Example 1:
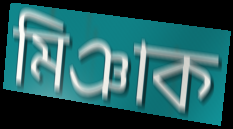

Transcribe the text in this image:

মিঞাক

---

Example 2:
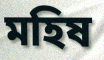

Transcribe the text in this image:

মহিষ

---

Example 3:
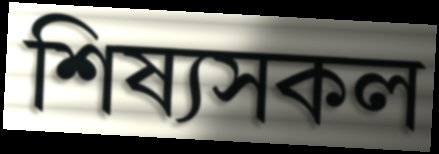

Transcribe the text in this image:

শিষ্যসকল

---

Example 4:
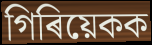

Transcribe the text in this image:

গিৰিয়েকক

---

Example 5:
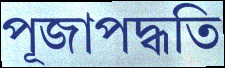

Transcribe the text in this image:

পূজাপদ্ধতি